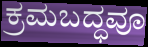
ಕ್ರಮಬದ್ಧವೂ